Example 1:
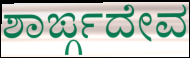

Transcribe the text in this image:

ಶಾರ್ಙ್ಗದೇವ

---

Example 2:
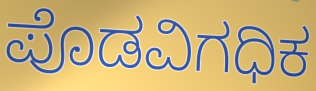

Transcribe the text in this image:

ಪೊಡವಿಗಧಿಕ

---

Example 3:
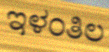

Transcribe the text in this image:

ಇಳಂತಿಲ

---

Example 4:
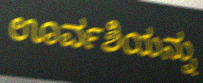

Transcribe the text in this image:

ಊರ್ವಶಿಯನ್ನು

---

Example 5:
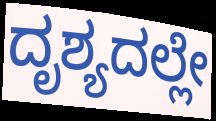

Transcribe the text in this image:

ದೃಶ್ಯದಲ್ಲೇ